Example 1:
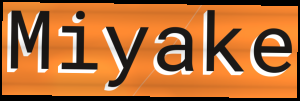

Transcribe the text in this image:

Miyake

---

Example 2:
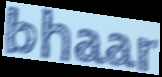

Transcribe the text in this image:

bhaar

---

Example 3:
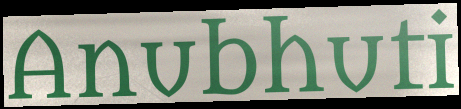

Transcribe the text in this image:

Anubhuti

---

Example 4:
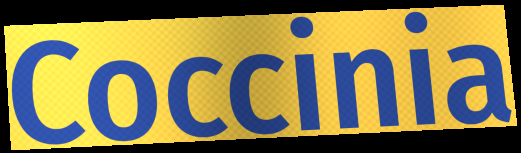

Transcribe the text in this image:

Coccinia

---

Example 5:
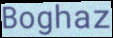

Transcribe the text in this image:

Boghaz